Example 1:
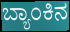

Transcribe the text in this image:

ಬ್ಯಾಂಕಿನ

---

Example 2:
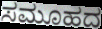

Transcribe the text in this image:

ಸಮೂಹದ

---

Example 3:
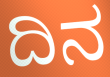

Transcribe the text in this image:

ದಿನ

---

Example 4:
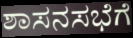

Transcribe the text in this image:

ಶಾಸನಸಭೆಗೆ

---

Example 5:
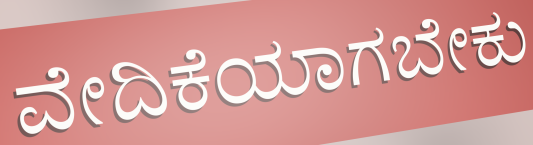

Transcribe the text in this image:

ವೇದಿಕೆಯಾಗಬೇಕು